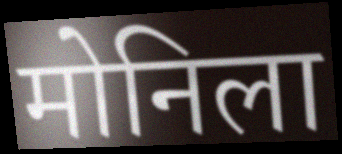
मोनिला